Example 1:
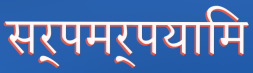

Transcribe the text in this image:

सर्पमर्पयामि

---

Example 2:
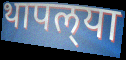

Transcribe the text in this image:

थापल्या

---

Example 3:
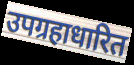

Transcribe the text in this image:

उपग्रहाधारित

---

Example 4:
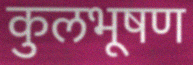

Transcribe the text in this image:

कुलभूषण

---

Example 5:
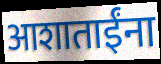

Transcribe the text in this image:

आशाताईंना